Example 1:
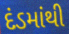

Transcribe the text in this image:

દંડમાંથી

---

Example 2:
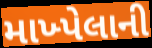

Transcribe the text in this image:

માખ્પેલાની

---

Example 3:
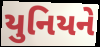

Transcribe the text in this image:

યુનિયને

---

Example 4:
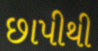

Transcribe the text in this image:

છાપીથી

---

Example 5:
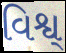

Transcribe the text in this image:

વિશ્વ્